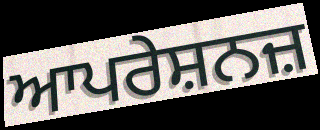
ਆਪਰੇਸ਼ਨਜ਼